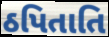
ઠપિતાતિ